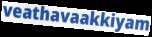
veathavaakkiyam